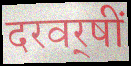
दरवर्षीं